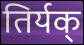
तिर्यक्